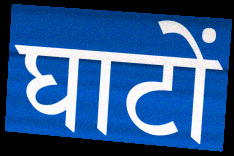
घाटों